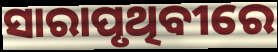
ସାରାପୃଥିବୀରେ